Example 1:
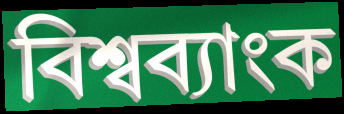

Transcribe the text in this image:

বিশ্বব্যাংক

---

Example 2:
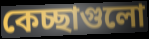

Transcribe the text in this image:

কেচ্ছাগুলো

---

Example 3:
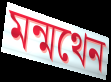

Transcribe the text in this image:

মন্মথেন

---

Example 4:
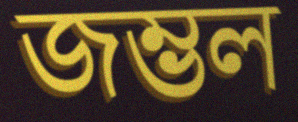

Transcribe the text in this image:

জম্ভল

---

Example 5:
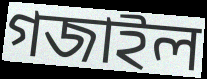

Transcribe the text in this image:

গজাইল